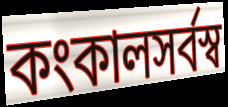
কংকালসর্বস্ব